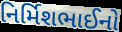
નિર્મિશભાઈનો